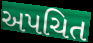
અપચિત